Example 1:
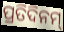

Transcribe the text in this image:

ପ୍ରତିଦିନମ୍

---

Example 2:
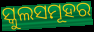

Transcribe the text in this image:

ସ୍କୁଲସମୂହର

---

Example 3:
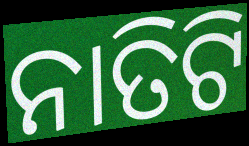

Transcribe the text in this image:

ନାତିଟି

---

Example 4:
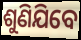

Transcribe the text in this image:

ଶୁଣିଯିବେ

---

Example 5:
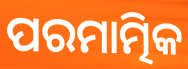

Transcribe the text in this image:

ପରମାତ୍ମିକ